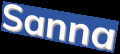
Sanna